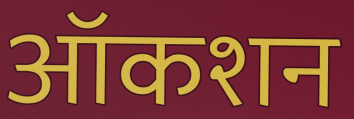
ऑकशन